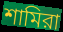
শামিরা